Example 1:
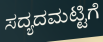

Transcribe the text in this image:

ಸದ್ಯದಮಟ್ಟಿಗೆ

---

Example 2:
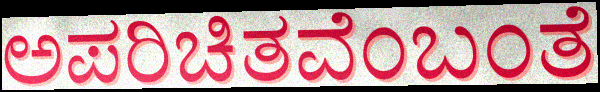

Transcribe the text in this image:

ಅಪರಿಚಿತವೆಂಬಂತೆ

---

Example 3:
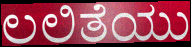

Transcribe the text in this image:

ಲಲಿತೆಯು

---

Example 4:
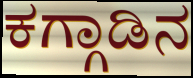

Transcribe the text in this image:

ಕಗ್ಗಾಡಿನ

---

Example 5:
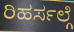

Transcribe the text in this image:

ರಿಹರ್ಸಲ್ಗೆ